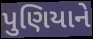
પુણિયાને